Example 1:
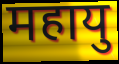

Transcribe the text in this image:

महायु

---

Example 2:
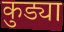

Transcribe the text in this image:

कुड्या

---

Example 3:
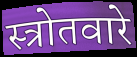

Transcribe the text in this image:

स्त्रोतवारे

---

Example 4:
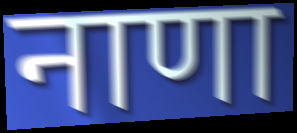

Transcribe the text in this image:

नाणा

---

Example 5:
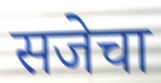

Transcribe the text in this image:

सजेचा